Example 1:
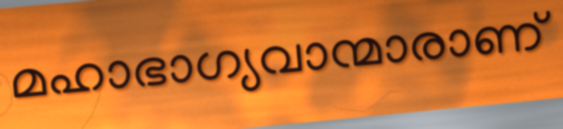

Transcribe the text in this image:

മഹാഭാഗ്യവാന്മാരാണ്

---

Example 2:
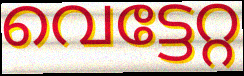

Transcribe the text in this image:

വെട്ടേറ്റ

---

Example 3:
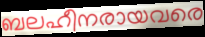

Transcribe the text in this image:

ബലഹീനരായവരെ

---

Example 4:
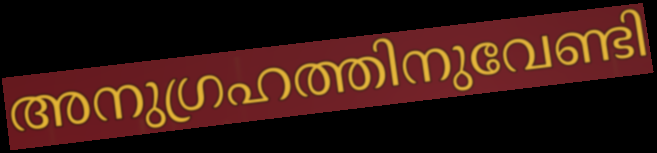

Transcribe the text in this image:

അനുഗ്രഹത്തിനുവേണ്ടി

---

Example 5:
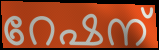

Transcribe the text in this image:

റേഷന്